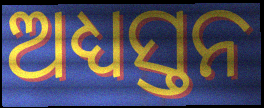
ଅଧ୍ୟସ୍ତନ